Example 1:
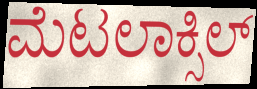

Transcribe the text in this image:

ಮೆಟಲಾಕ್ಸಿಲ್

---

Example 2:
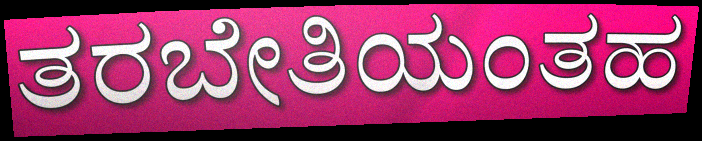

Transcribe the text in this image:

ತರಬೇತಿಯಂತಹ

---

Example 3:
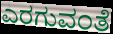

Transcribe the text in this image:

ಎರಗುವಂತೆ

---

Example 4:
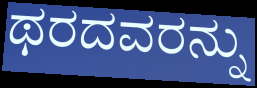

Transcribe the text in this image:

ಥರದವರನ್ನು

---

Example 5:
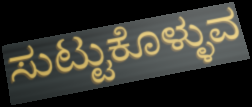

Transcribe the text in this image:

ಸುಟ್ಟುಕೊಳ್ಳುವ